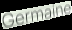
Germaine